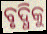
ବୃଦ୍ଧିକୁ